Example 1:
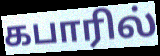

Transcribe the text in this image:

கபாரில்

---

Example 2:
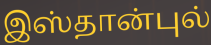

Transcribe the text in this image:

இஸ்தான்புல்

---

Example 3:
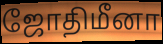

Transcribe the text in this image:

ஜோதிமீனா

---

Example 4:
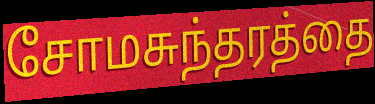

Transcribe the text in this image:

சோமசுந்தரத்தை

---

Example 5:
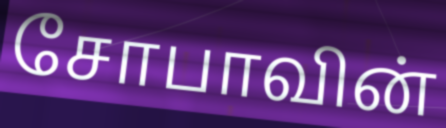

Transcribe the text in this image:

சோபாவின்